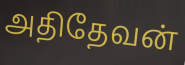
அதிதேவன்